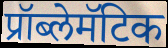
प्रॉब्लेमॅटिक